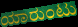
ಯಾರುಂಟು